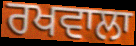
ਰਖਵਾਲਾ